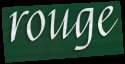
rouge